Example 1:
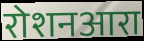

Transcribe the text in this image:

रोशनआरा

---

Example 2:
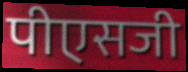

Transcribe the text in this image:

पीएसजी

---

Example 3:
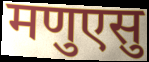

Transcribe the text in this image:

मणुएसु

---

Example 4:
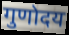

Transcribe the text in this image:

गुणोदय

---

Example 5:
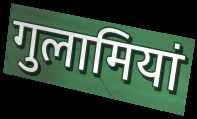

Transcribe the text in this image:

गुलामियां